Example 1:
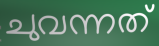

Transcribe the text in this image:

ചുവന്നത്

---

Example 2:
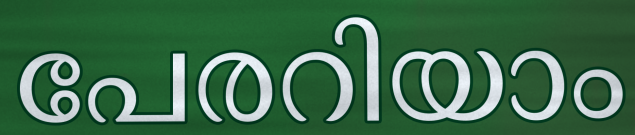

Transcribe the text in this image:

പേരറിയാം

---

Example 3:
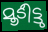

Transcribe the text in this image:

മൂടീട്ടു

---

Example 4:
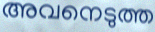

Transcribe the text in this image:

അവനെടുത്ത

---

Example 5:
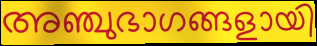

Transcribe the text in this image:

അഞ്ചുഭാഗങ്ങളായി